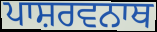
ਪਾਸ਼ਰਵਨਾਥ